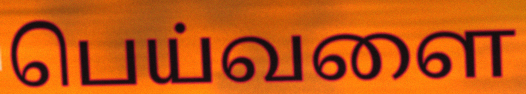
பெய்வளை